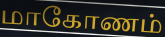
மாகோணம்